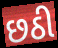
છઠી